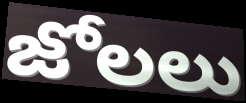
జోలలు